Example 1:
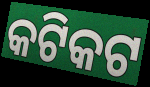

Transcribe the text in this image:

କଟିକଟ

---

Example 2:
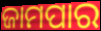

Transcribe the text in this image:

ଜାମପାର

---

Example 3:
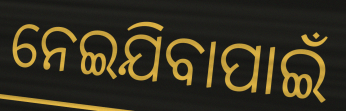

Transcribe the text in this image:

ନେଇଯିବାପାଇଁ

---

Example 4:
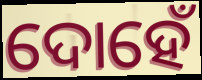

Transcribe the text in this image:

ଦୋହେଁ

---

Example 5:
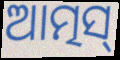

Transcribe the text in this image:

ଆତ୍ମସ୍